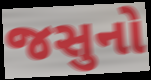
જસુનો